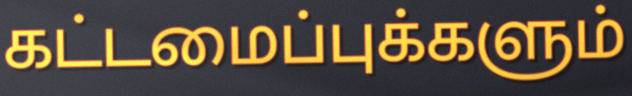
கட்டமைப்புக்களும்